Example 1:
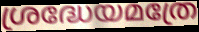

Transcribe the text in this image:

ശ്രദ്ധേയമത്രേ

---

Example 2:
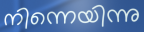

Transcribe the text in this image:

നിന്നെയിന്നു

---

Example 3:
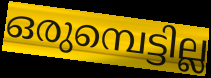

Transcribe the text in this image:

ഒരുമ്പെട്ടില്ല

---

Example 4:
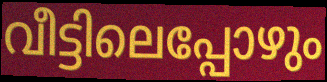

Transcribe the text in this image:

വീട്ടിലെപ്പോഴും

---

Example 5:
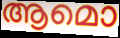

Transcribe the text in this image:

ആമൊ